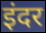
इंदर